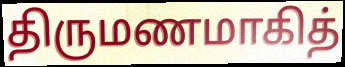
திருமணமாகித்